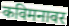
कविमनावर